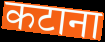
कटाना